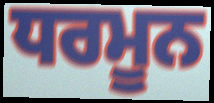
ਧਰਮੂਨ